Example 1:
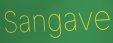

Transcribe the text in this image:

Sangave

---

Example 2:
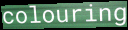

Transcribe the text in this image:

colouring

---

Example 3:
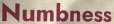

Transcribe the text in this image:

Numbness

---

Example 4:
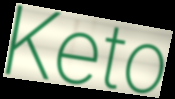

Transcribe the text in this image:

Keto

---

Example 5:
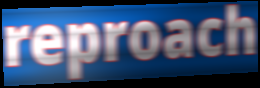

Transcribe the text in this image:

reproach